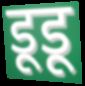
डूडू